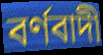
বৰ্ণবাদী